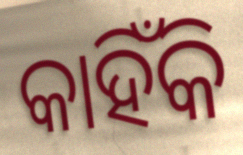
କାହିଁକି